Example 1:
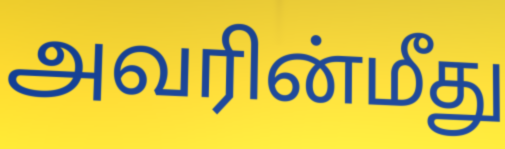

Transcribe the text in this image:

அவரின்மீது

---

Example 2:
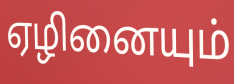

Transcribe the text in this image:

ஏழினையும்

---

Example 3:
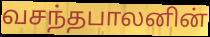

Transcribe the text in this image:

வசந்தபாலனின்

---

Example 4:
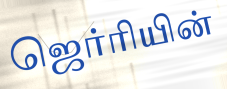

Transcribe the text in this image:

ஜெர்ரியின்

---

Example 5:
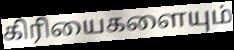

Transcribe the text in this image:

கிரியைகளையும்